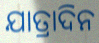
ଯାତ୍ରାଦିନ